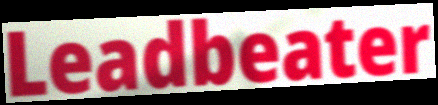
Leadbeater